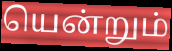
யென்றும்